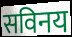
सविनय